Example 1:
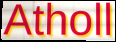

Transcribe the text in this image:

Atholl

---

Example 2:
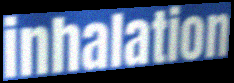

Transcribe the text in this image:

inhalation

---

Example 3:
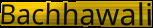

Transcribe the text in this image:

Bachhawali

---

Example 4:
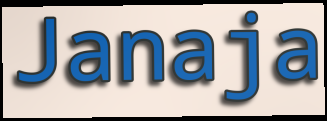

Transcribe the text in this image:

Janaja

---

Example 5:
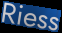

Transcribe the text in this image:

Riess